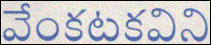
వేంకటకవిని